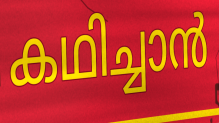
കഥിച്ചാൻ